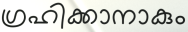
ഗ്രഹിക്കാനാകും